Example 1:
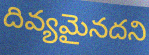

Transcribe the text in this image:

దివ్యమైనదని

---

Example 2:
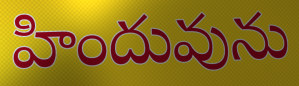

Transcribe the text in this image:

హిందువును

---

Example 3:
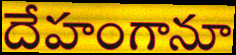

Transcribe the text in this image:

దేహంగానూ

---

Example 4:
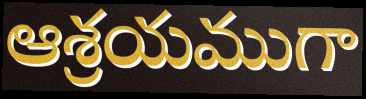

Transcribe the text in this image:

ఆశ్రయముగా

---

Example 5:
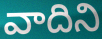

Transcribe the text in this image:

వాదిని